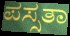
ಪಸ್ಸತಾ